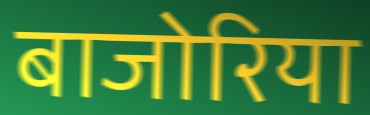
बाजोरिया